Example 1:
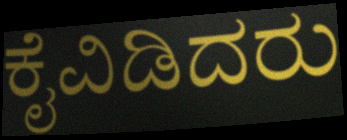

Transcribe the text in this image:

ಕೈವಿಡಿದರು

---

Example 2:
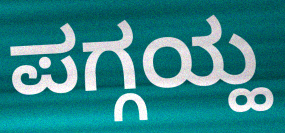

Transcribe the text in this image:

ಪಗ್ಗಯ್ಹ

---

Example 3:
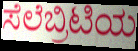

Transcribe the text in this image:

ಸೆಲೆಬ್ರಿಟಿಯ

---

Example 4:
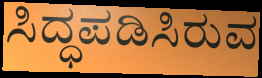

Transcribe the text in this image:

ಸಿದ್ಧಪಡಿಸಿರುವ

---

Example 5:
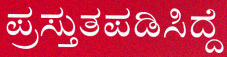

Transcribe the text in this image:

ಪ್ರಸ್ತುತಪಡಿಸಿದ್ದೆ